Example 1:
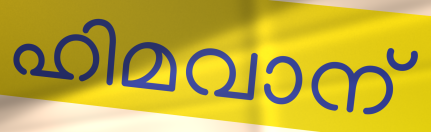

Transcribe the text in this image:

ഹിമവാന്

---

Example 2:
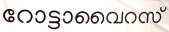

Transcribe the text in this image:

റോട്ടാവൈറസ്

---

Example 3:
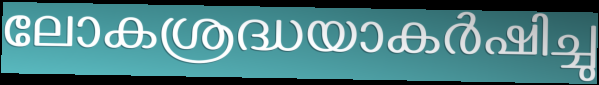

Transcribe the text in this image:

ലോകശ്രദ്ധയാകർഷിച്ചു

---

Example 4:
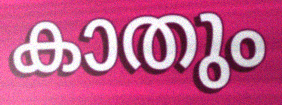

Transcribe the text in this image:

കാതും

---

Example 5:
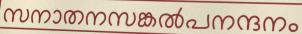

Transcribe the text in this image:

സനാതനസങ്കൽപനന്ദനം